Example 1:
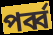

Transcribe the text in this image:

পর্ব্ব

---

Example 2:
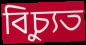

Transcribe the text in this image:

বিচ্যুত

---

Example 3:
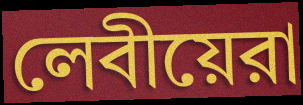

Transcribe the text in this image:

লেবীয়েরা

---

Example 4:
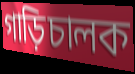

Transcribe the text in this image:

গাড়িচালক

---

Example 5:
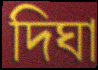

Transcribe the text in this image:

দিঘা